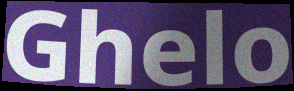
Ghelo